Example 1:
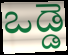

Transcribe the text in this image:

ఒడ్డె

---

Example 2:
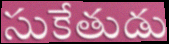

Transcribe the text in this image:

సుకేతుడు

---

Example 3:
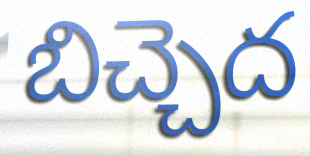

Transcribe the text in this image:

బిచ్చెద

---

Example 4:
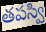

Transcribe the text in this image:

తపస్వి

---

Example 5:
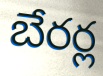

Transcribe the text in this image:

బేరర్ల